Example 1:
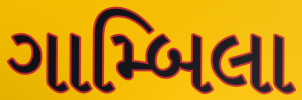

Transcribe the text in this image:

ગામ્બિલા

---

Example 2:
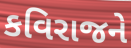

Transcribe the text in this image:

કવિરાજને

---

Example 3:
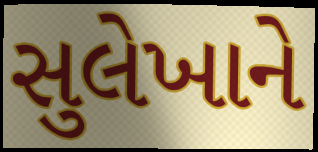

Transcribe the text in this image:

સુલેખાને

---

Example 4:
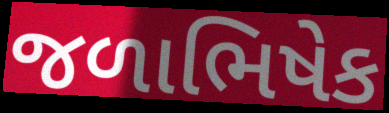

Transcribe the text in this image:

જળાભિષેક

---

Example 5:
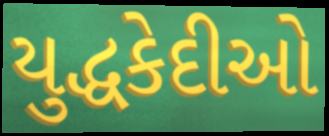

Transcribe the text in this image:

યુદ્ધકેદીઓ